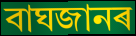
বাঘজানৰ